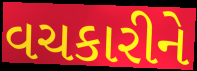
વચકારીને